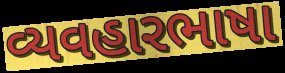
વ્યવહારભાષા